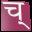
च्